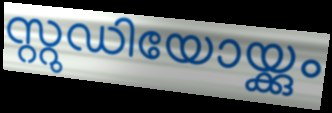
സ്റ്റുഡിയോയ്ക്കും